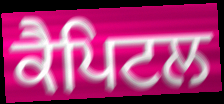
ਕੈਪਿਟਲ